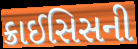
ક્રાઈસિસની